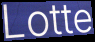
Lotte